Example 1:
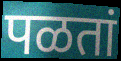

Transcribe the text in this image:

पळतां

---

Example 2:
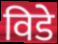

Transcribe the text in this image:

विडे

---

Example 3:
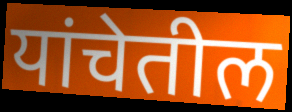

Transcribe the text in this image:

यांचेतील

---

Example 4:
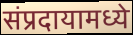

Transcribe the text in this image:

संप्रदायामध्ये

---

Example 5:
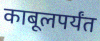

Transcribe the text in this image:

काबूलपर्यंत